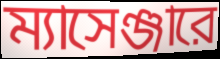
ম্যাসেঞ্জারে